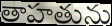
తాహతును